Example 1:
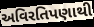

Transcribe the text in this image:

અવિરતિપણાથી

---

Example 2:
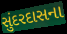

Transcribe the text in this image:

સુંદરદાસના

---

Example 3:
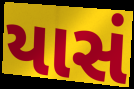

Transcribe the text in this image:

યાસં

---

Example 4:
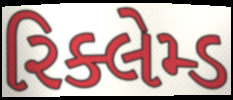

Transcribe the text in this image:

રિક્લેમ્ડ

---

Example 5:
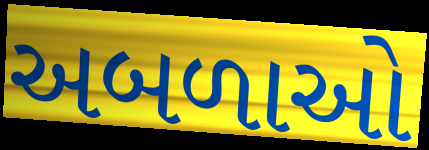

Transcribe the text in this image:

અબળાઓ